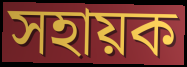
সহায়ক